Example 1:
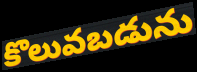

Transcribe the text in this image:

కొలువబడును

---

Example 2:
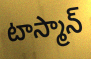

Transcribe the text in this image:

టాస్మాన్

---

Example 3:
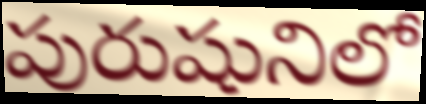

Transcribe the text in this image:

పురుషునిలో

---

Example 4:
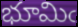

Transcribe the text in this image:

భూమిఁ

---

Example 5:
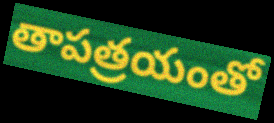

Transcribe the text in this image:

తాపత్రయంతో